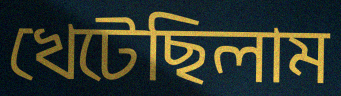
খেটেছিলাম